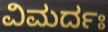
ವಿಮರ್ದಃ